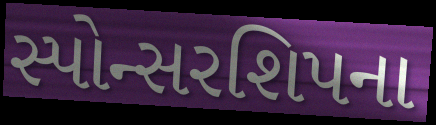
સ્પોન્સરશિપના